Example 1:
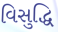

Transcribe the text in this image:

વિસુદ્ધિ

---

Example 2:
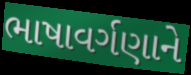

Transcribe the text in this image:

ભાષાવર્ગણાને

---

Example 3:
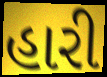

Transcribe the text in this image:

હારી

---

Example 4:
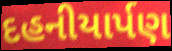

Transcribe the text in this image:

દહનીયાર્પણ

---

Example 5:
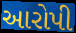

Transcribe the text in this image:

આરોપી